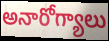
అనారోగ్యాలు